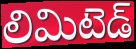
లిమిటెడ్